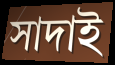
সাদাই